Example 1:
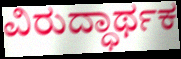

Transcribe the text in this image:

ವಿರುದ್ಧಾರ್ಥಕ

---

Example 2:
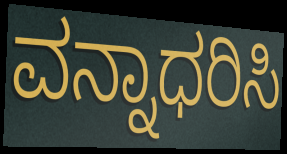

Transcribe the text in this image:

ವನ್ನಾಧರಿಸಿ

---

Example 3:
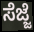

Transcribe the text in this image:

ಸೆಜ್ಜೆ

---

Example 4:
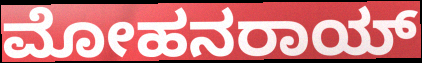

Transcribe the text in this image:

ಮೋಹನರಾಯ್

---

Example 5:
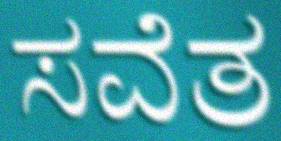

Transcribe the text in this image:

ಸವೆತ